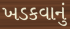
ખડકવાનું